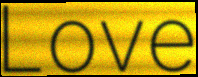
Love